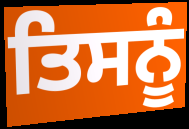
ਤਿਸਨੂੰ